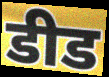
डीड